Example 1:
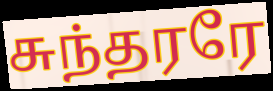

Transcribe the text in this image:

சுந்தரரே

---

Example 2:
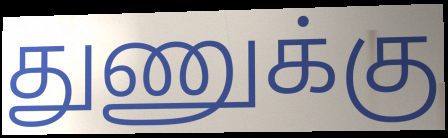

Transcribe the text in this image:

துணுக்கு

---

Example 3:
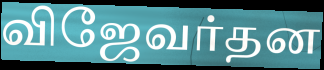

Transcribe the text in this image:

விஜேவர்தன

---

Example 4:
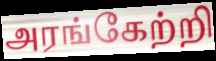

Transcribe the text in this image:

அரங்கேற்றி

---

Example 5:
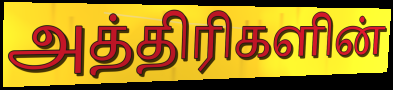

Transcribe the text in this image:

அத்திரிகளின்